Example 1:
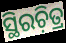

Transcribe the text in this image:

ସ୍ଥିରଚ଼ିତ୍ର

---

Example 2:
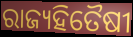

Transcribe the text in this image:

ରାଜ୍ୟହିତୈଷୀ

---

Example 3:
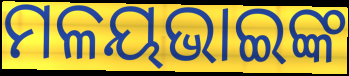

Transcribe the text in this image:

ମଳୟଭାଇଙ୍କ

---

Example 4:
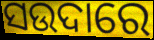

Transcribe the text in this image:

ସଉଦାରେ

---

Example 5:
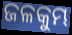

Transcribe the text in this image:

ଜଳକୁମ୍ଭ